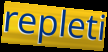
repleti